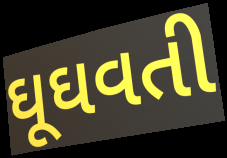
ઘૂઘવતી